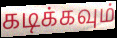
கடிக்கவும்